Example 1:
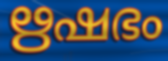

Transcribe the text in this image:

ഋഷഭം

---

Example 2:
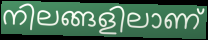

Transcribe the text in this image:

നിലങ്ങളിലാണ്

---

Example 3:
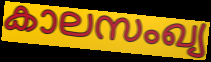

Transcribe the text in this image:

കാലസംഖ്യ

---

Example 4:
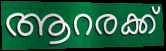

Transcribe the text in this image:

ആറരക്ക്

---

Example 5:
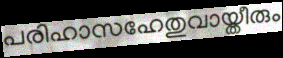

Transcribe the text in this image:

പരിഹാസഹേതുവായ്തീരും